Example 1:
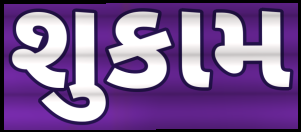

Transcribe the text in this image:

શુકામ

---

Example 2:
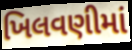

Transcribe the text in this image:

ખિલવણીમાં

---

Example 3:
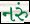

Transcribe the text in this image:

નરું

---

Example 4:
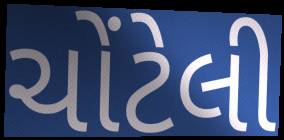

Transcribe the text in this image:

ચોંટેલી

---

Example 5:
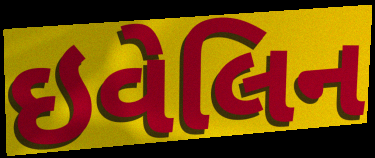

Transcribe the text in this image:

ઇવેલિન